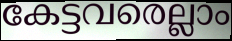
കേട്ടവരെല്ലാം